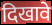
दिखावे